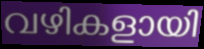
വഴികളായി